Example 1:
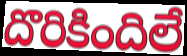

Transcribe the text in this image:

దొరికిందిలే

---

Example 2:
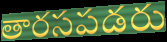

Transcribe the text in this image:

తారసపడరు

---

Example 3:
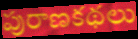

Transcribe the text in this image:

పురాణకథలు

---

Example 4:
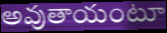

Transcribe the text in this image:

అవుతాయంటూ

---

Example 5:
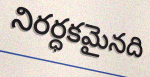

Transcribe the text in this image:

నిరర్ధకమైనది